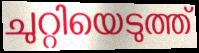
ചുറ്റിയെടുത്ത്